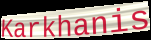
Karkhanis